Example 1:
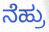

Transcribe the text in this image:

ನೆಹ್ರು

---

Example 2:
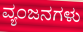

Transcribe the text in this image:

ವ್ಯಂಜನಗಳು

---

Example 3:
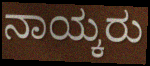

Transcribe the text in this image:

ನಾಯ್ಕರು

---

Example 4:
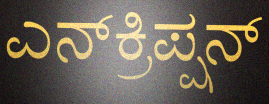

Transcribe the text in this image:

ಎನ್‌ಕ್ರಿಪ್ಷನ್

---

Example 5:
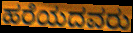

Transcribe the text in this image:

ಹರೆಯದವರು